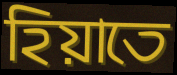
হিয়াতে